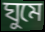
ঘুমে